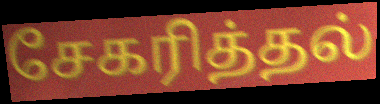
சேகரித்தல்